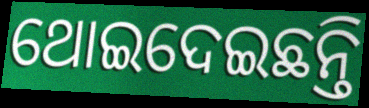
ଥୋଇଦେଇଛନ୍ତି